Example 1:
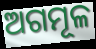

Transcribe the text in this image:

ଅଗମୂଳ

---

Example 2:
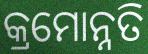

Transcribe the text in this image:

କ୍ରମୋନ୍ନତି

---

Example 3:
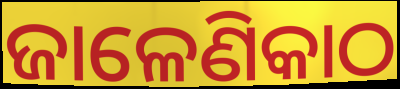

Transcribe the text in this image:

ଜାଳେଣିକାଠ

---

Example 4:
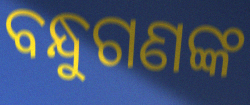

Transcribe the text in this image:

ବନ୍ଧୁଗଣଙ୍କ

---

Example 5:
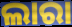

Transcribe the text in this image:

ଲାରା